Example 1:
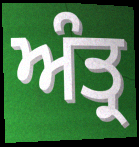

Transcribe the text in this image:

ਅੰਤ੍ਰ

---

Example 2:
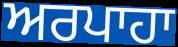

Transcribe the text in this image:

ਅਰਪਾਹਾ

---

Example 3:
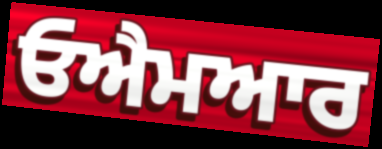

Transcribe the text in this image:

ਓਐਮਆਰ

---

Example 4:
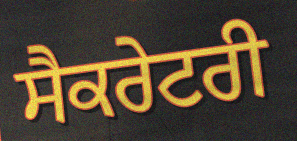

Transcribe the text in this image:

ਸੈਕਰੇਟਰੀ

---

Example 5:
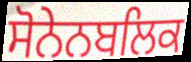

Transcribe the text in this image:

ਸੋਨੇਨਬਲਿਕ